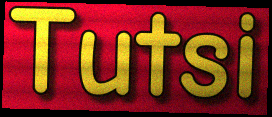
Tutsi